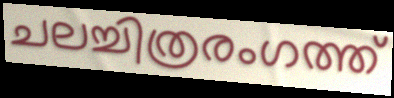
ചലച്ചിത്രരംഗത്ത്